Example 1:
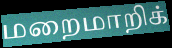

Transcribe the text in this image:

மறைமாறிக்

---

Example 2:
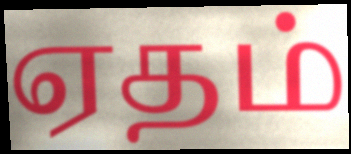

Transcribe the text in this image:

ஏதம்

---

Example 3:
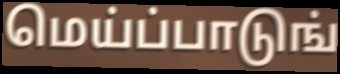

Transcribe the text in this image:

மெய்ப்பாடுங்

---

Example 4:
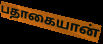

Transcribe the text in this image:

பதாகையான்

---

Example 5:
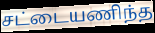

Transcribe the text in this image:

சட்டையணிந்த